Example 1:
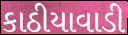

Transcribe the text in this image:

કાઠીયાવાડી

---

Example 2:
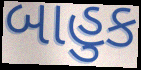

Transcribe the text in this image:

બાહુક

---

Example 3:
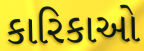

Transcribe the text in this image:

કારિકાઓ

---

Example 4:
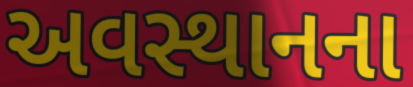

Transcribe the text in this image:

અવસ્થાનના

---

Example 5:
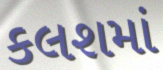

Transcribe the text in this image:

કલશમાં